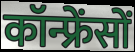
कॉन्फ्रेंसों